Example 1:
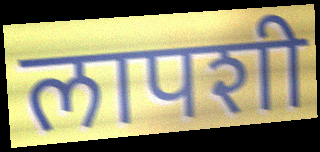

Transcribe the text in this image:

लापशी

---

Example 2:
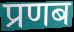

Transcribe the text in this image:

प्रणब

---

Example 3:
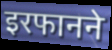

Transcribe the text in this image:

इरफानने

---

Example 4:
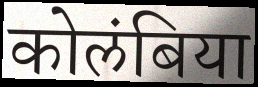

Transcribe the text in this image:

कोलंबिया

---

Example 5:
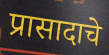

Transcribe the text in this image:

प्रासादाचे